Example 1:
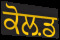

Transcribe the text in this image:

ਕੋਲ਼ਡ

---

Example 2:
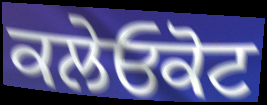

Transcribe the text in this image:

ਕਲੇਓਕੋਟ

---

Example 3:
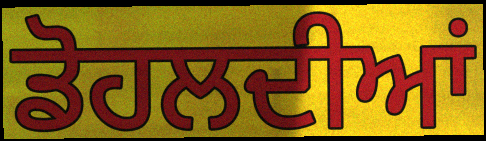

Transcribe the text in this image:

ਡੋਹਲਦੀਆਂ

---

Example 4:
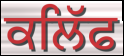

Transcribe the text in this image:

ਕਲਿੱਫ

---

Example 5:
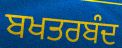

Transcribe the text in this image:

ਬਖਤਰਬੰਦ